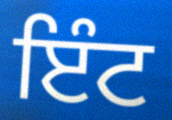
ਇੰਟ